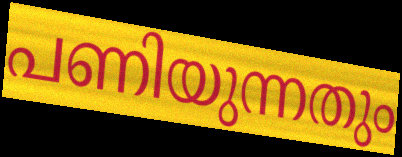
പണിയുന്നതും